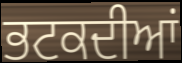
ਭਟਕਦੀਆਂ